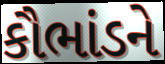
કૌભાંડને